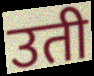
उती